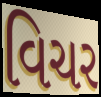
વિચર